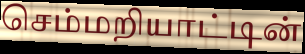
செம்மறியாட்டின்